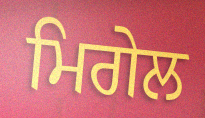
ਮਿਗੇਲ